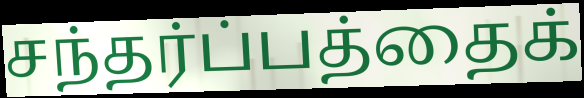
சந்தர்ப்பத்தைக்